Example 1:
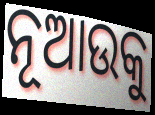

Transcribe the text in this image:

ନୂଆଉକୁ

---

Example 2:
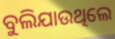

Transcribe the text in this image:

ବୁଲିଯାଉଥିଲେ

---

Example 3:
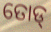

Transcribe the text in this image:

ତୋଡ୍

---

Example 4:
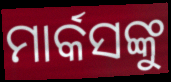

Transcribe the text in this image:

ମାର୍କସଙ୍କୁ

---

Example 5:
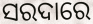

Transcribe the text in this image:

ସରଦାରେ